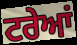
ਟਰੇਆਂ